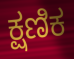
ಕ್ಷಣಿಕ